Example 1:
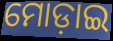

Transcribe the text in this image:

ମୋଡ଼ାଇ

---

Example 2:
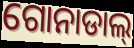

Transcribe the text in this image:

ଗୋନାଡାଲ୍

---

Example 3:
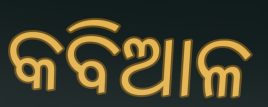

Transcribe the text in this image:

କବିଆଳ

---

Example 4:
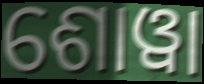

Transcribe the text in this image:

ଶୋୱା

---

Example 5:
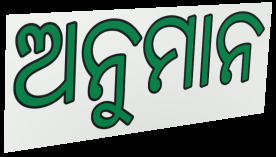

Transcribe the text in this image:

ଅନୁମାନ